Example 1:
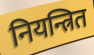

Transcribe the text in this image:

नियन्त्रित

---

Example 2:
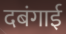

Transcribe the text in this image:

दबंगाई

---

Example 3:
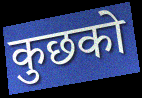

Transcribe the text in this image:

कुछको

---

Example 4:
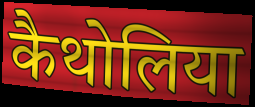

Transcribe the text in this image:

कैथोलिया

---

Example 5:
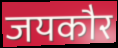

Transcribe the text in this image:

जयकौर